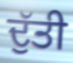
ਦੁੱਤੀ